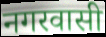
नगरवासी